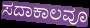
ಸದಾಕಾಲವೂ